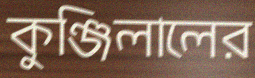
কুঞ্জিলালের